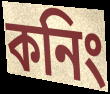
কনিং